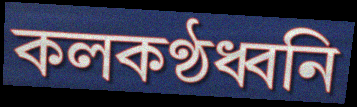
কলকণ্ঠধ্বনি